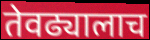
तेवढ्यालाच